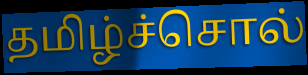
தமிழ்ச்சொல்